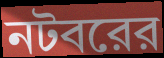
নটবরের